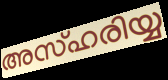
അസ്ഹരിയ്യ